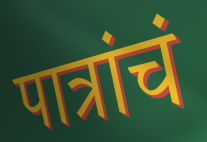
पात्रांचं